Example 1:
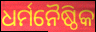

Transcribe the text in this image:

ଧର୍ମନୈଷ୍ଠିକ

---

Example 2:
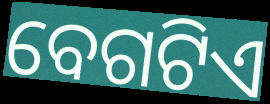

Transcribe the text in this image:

ବେଗଟିଏ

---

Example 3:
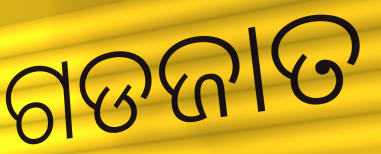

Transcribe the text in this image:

ଗଡଜାତ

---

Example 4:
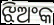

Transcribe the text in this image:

ଝିଅଂକ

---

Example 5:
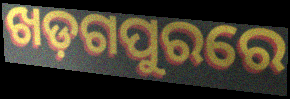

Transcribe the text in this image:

ଖଡ଼ଗପୁରରେ